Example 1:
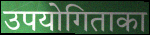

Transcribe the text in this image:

उपयोगिताका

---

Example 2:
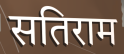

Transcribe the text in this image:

सतिराम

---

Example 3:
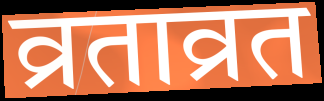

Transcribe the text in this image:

व्रताव्रत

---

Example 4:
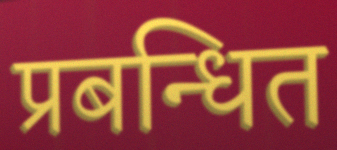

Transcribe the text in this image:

प्रबन्धित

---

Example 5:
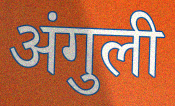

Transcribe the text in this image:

अंगुली